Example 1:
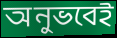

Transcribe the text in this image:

অনুভবেই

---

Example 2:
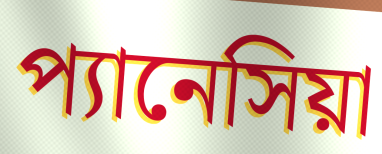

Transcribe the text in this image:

প্যানেসিয়া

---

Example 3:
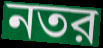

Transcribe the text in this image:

নতর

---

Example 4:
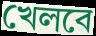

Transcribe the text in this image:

খেলবে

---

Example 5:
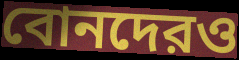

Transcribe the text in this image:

বোনদেরও